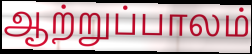
ஆற்றுப்பாலம்